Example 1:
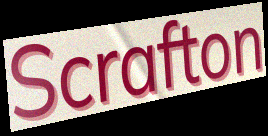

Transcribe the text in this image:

Scrafton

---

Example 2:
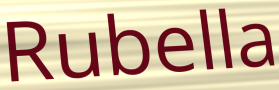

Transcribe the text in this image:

Rubella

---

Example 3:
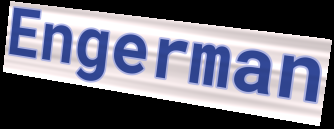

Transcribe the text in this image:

Engerman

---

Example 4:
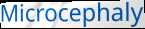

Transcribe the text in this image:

Microcephaly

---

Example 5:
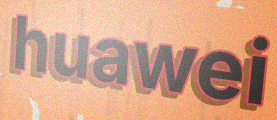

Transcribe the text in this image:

huawei